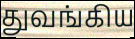
துவங்கிய